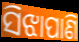
ସିଝାପାଣି